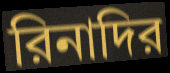
রিনাদির